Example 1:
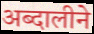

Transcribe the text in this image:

अब्दालीने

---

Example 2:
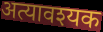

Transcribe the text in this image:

अत्यावश्यक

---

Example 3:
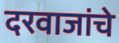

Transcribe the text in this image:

दरवाजांचे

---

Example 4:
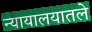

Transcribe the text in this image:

न्यायालयातले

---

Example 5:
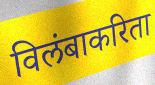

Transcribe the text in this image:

विलंबाकरिता